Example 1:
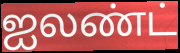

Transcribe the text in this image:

ஐலண்ட்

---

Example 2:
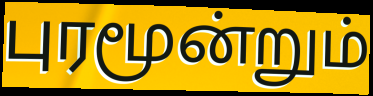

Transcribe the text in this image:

புரமூன்றும்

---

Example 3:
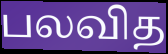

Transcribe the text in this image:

பலவித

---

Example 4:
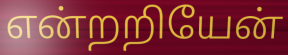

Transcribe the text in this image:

என்றறியேன்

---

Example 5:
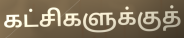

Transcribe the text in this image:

கட்சிகளுக்குத்